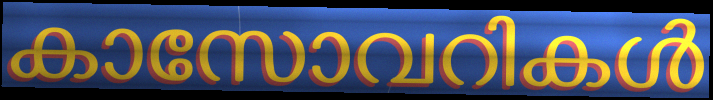
കാസോവറികൾ